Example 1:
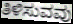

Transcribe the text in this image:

ತಿಳಿಸುವವು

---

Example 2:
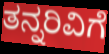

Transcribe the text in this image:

ತನ್ನರಿವಿಗೆ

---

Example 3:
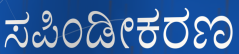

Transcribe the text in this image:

ಸಪಿಂಡೀಕರಣ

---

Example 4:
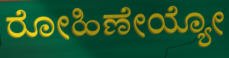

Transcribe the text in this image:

ರೋಹಿಣೇಯ್ಯೋ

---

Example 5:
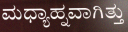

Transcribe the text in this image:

ಮಧ್ಯಾಹ್ನವಾಗಿತ್ತು